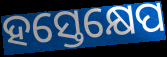
ହସ୍ତେକ୍ଷେପ